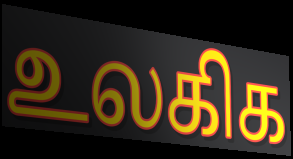
உலகிக